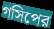
গসিপের